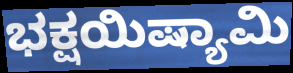
ಭಕ್ಷಯಿಷ್ಯಾಮಿ